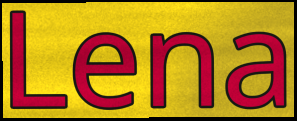
Lena